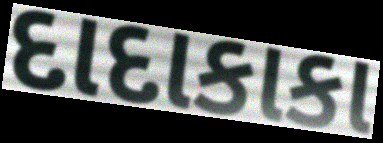
દાદાકાકા